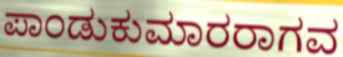
ಪಾಂಡುಕುಮಾರರಾಗವ